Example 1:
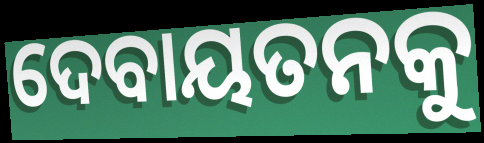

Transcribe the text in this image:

ଦେବାୟତନକୁ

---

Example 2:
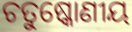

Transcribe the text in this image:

ଚତୁଷ୍କୋଣୀୟ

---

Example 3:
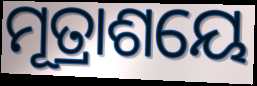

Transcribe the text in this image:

ମୂତ୍ରାଶୟେ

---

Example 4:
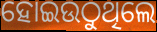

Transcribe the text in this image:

ହୋଇଉଠୁଥିଲେ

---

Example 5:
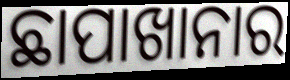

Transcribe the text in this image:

ଛାପାଖାନାର